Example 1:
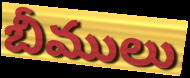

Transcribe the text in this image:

బీములు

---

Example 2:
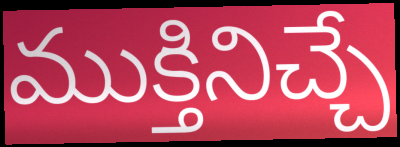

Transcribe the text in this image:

ముక్తినిచ్చే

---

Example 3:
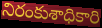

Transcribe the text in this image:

నిరంకుశాధికారి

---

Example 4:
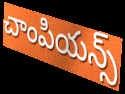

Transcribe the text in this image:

చాంపియన్స్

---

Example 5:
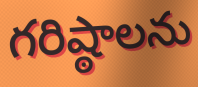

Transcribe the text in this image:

గరిష్ఠాలను